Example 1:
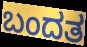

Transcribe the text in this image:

ಬಂದತ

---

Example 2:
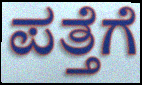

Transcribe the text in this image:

ಪತ್ತೆಗೆ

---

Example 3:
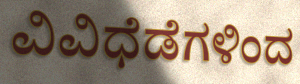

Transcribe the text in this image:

ವಿವಿಧೆಡೆಗಳಿಂದ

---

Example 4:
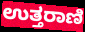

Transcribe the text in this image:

ಉತ್ತರಾಣಿ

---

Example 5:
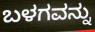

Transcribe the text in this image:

ಬಳಗವನ್ನು